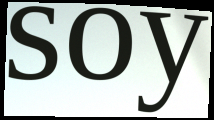
soy